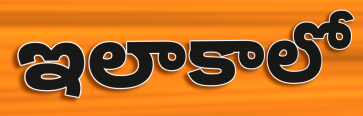
ఇలాకాలో